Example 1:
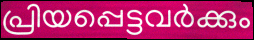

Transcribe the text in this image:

പ്രിയപ്പെട്ടവർക്കും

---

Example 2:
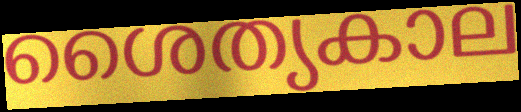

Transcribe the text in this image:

ശൈത്യകാല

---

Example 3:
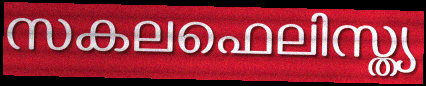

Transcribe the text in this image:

സകലഫെലിസ്ത്യ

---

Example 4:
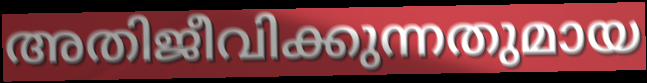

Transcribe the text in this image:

അതിജീവിക്കുന്നതുമായ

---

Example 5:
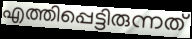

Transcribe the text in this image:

എത്തിപ്പെട്ടിരുന്നത്